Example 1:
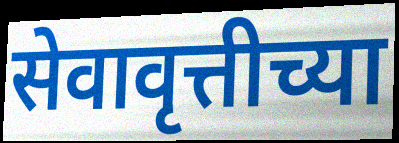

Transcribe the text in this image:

सेवावृत्तीच्या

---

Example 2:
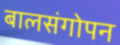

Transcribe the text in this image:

बालसंगोपन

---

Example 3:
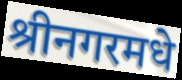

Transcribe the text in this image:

श्रीनगरमधे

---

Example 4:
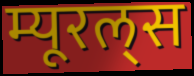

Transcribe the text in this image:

म्यूरल्स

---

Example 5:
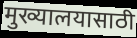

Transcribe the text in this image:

मुख्यालयासाठी